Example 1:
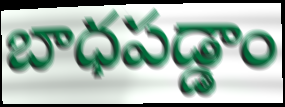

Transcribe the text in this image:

బాధపడ్డాం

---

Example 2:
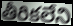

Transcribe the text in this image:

తీరికలేని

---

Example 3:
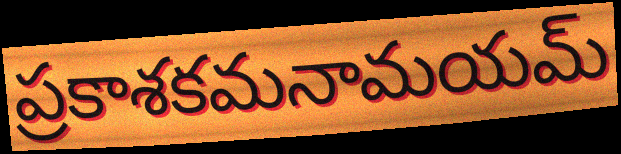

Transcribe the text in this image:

ప్రకాశకమనామయమ్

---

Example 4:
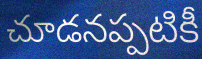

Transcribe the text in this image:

చూడనప్పటికీ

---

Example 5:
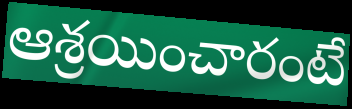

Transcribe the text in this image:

ఆశ్రయించారంటే